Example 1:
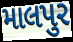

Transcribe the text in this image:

માલપુર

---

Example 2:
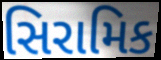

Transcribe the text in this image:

સિરામિક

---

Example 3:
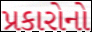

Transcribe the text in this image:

પ્રકારોનો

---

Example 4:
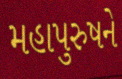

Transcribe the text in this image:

મહાપુરુષને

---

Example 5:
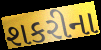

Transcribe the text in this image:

શકરીના